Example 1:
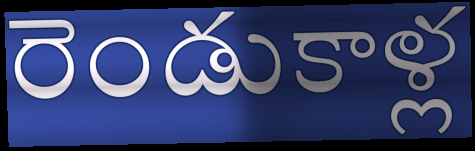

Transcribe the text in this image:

రెండుకాళ్ల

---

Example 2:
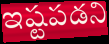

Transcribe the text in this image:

ఇష్టపడని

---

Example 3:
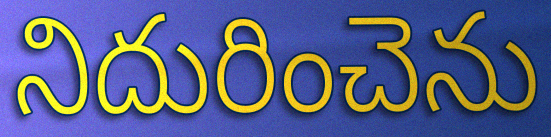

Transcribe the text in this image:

నిదురించెను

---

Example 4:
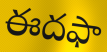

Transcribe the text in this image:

ఈదఫా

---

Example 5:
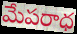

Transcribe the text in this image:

మేపరాధ